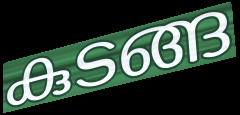
കുടങ്ങ